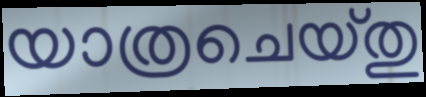
യാത്രചെയ്തു